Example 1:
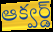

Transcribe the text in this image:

ఆక్వర్డ్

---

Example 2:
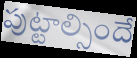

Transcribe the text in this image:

పుట్టాల్సిందే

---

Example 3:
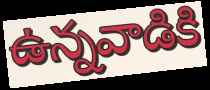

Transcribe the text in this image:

ఉన్నవాడికి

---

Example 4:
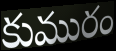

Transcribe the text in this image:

కుమురం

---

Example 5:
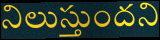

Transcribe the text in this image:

నిలుస్తుందని